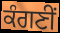
ਕੰਗਣੀਂ